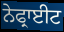
ਨੇਫ੍ਰਾਈਟ